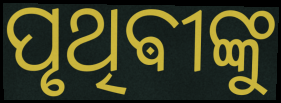
ପୃଥିଵୀଙ୍କୁ